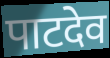
पाटदेव